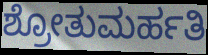
ಶ್ರೋತುಮರ್ಹತಿ